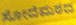
ಸೋದೆಮಠದ